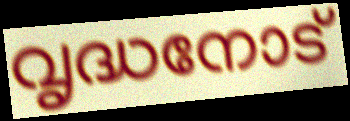
വൃദ്ധനോട്